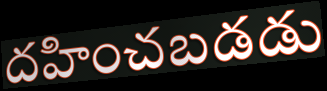
దహించబడడు